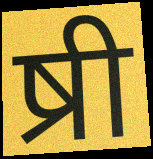
ष्री